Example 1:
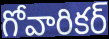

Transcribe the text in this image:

గోవారికర్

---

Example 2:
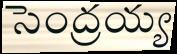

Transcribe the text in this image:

సెంద్రయ్య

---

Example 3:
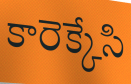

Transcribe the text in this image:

కారెక్కేసి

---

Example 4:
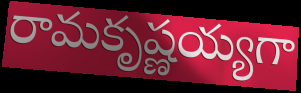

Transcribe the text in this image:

రామకృష్ణయ్యగా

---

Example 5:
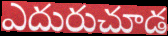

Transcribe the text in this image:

ఎదురుచూడ